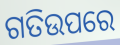
ଗତିଉପରେ